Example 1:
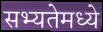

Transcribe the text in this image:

सभ्यतेमध्ये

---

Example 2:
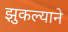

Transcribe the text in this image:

झुकल्याने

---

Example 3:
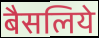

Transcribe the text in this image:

बैसलिये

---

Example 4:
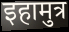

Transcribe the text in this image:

इहामुत्र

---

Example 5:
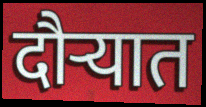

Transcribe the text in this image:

दौर्‍यात